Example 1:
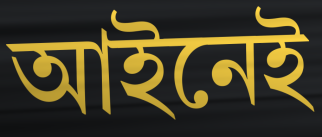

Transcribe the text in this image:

আইনেই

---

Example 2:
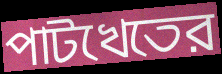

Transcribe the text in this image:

পাটখেতের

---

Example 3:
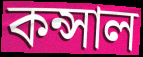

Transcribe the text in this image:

কন্সাল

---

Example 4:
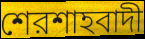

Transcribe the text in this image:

শেরশাহবাদী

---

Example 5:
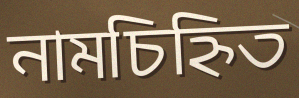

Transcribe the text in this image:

নামচিহ্নিত